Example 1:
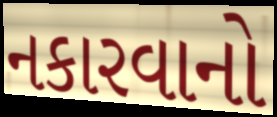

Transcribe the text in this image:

નકારવાનો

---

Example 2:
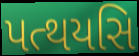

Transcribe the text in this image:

પત્થયસિ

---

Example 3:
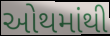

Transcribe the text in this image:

ઓથમાંથી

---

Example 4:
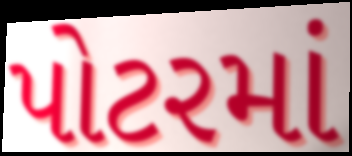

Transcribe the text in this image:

પોટરમાં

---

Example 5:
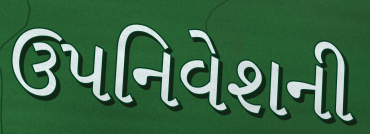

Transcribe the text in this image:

ઉપનિવેશની